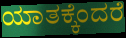
ಯಾತಕ್ಕೆಂದರೆ